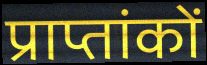
प्राप्तांकों